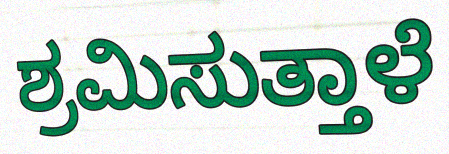
ಶ್ರಮಿಸುತ್ತಾಳೆ